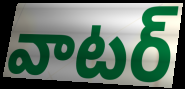
వాటర్